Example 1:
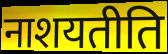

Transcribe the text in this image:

नाशयतीति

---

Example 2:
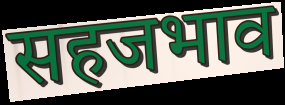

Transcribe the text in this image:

सहजभाव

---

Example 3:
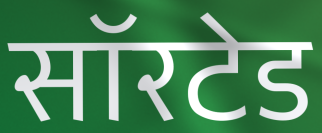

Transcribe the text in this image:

सॉरटेड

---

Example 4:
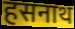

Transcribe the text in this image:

हसनाथ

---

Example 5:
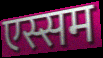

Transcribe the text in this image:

एस्सम